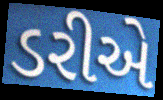
ડરીએ